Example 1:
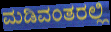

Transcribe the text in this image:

ಮಡಿವಂತರಲ್ಲಿ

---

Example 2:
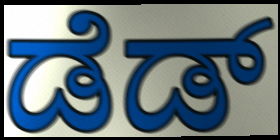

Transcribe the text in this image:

ಡೆಡ್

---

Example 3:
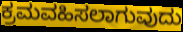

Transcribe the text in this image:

ಕ್ರಮವಹಿಸಲಾಗುವುದು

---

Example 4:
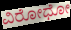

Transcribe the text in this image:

ವಿರೋಧೋ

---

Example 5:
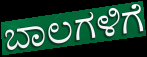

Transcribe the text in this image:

ಬಾಲಗಳಿಗೆ